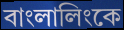
বাংলালিংকে